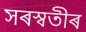
সৰস্বতীৰ